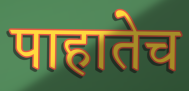
पाहातेच